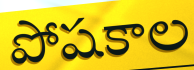
పోషకాల